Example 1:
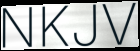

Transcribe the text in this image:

NKJV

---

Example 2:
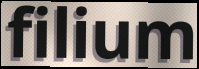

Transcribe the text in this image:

filium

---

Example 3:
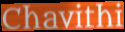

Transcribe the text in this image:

Chavithi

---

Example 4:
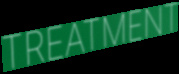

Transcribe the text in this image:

TREATMENT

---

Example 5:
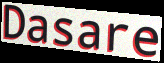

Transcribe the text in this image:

Dasare